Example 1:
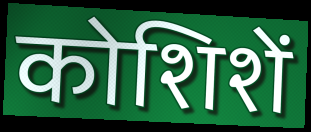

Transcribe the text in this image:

कोशिशें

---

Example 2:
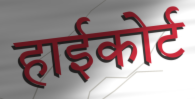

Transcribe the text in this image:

हाईकोर्ट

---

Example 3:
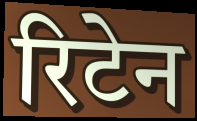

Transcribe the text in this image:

रिटेन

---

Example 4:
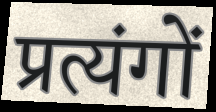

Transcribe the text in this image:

प्रत्यंगों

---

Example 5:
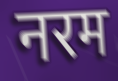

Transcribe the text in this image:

नरम